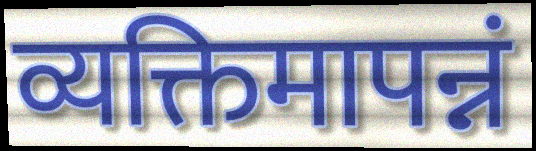
व्यक्तिमापन्नं